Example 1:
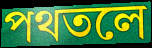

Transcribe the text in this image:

পথতলে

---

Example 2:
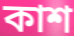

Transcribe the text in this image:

কাশ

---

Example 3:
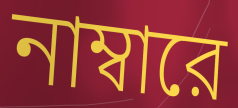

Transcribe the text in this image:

নাম্বারে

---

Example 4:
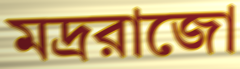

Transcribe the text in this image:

মদ্ররাজো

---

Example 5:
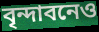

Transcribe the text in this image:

বৃন্দাবনেও